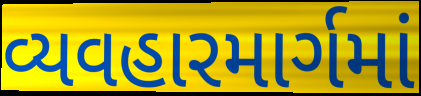
વ્યવહારમાર્ગમાં